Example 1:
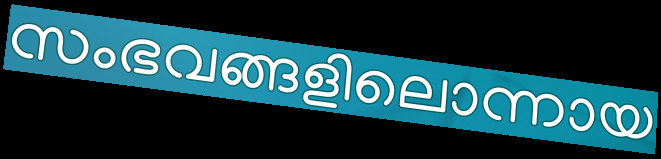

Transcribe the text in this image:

സംഭവങ്ങളിലൊന്നായ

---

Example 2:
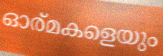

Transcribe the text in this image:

ഓര്മകളെയും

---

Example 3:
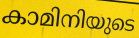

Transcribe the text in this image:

കാമിനിയുടെ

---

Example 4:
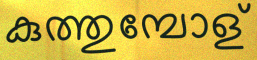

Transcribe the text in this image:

കുത്തുമ്പോള്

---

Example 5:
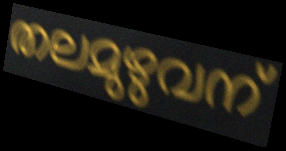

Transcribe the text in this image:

തലമുഴുവന്